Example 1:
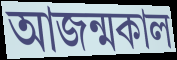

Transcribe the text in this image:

আজন্মকাল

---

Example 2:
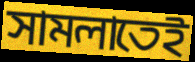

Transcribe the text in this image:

সামলাতেই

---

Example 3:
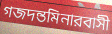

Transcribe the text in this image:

গজদন্তমিনারবাসী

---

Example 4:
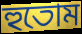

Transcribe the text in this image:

হুতোম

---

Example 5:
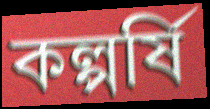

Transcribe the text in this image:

কল্পর্ষি